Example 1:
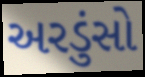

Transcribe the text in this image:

અરડુંસો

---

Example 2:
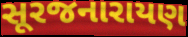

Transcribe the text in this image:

સૂરજનારાયણ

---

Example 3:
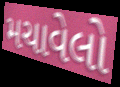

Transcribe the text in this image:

મચાવેલો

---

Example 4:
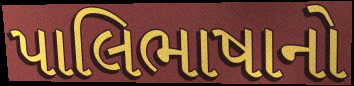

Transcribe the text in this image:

પાલિભાષાનો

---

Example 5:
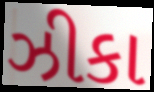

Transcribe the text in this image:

ઝીકા